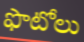
ఫొటోలు